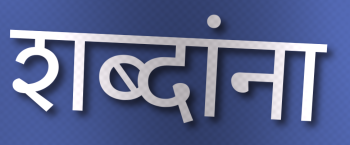
शब्दांना